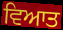
ਵਿਆਤ